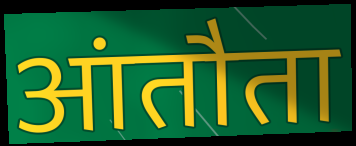
आंतौता